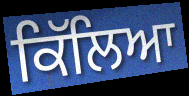
ਕਿੱਲਿਆ